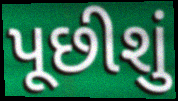
પૂછીશું